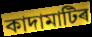
কাদামাটিৰ